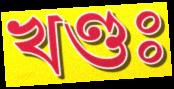
খণ্ডঃ